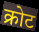
क्रोट